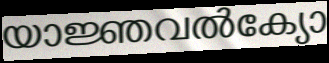
യാജ്ഞവൽക്യോ